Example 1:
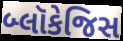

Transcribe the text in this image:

બ્લૉકેજિસ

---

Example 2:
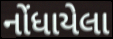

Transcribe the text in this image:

નોંધાયેલા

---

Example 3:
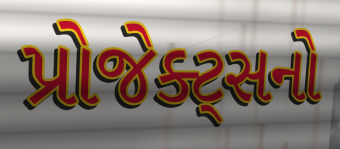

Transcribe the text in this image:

પ્રોજેક્ટ્સનો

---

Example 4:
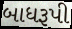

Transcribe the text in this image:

બાધરૂપી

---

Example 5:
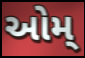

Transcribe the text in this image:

ઓમ્